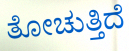
ತೋಚುತ್ತಿದೆ